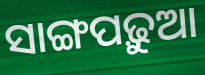
ସାଙ୍ଗପଢ଼ୁଆ